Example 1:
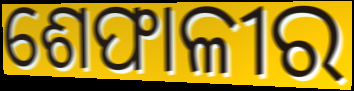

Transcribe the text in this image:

ଶେଫାଳୀର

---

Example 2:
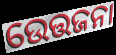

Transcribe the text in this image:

ଉେତ୍ତଜନା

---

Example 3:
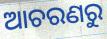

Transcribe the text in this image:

ଆଚରଣରୁ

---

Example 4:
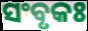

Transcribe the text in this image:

ସଂବୃକଃ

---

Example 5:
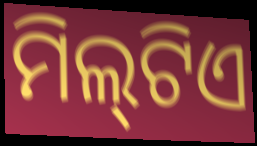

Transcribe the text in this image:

ମିଲ୍‌ଟିଏ